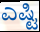
ಎಷ್ಟಿ